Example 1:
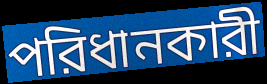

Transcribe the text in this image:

পরিধানকারী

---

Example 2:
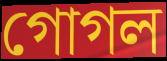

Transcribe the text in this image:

গোগল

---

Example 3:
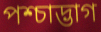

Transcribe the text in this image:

পশ্চাদ্ভাগ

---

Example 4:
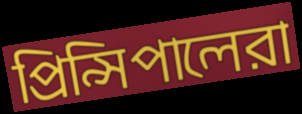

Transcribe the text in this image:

প্রিন্সিপালেরা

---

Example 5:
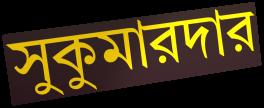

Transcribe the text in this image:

সুকুমারদার